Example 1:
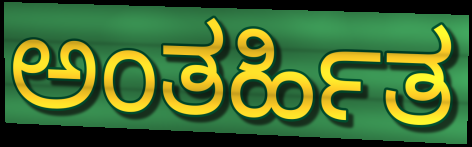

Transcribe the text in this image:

ಅಂತರ್ಹಿತ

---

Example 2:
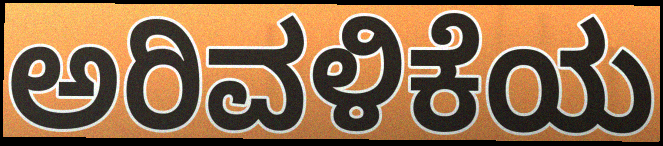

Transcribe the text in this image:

ಅರಿವಳಿಕೆಯ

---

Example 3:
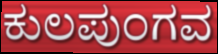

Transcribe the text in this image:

ಕುಲಪುಂಗವ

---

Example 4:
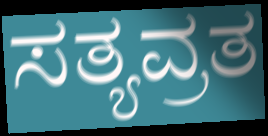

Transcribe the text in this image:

ಸತ್ಯವ್ರತ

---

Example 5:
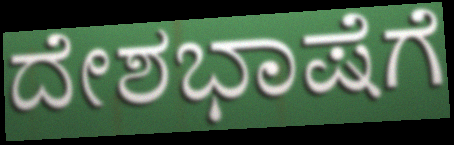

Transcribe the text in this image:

ದೇಶಭಾಷೆಗೆ